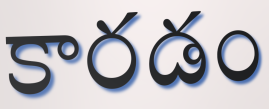
కారడం